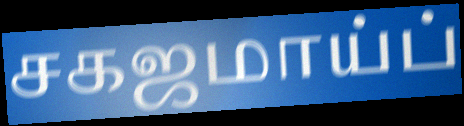
சகஜமாய்ப்